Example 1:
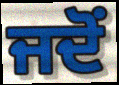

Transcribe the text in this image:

ਜਦੋਂ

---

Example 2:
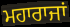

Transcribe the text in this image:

ਮਹਾਰਾਜਾਂ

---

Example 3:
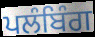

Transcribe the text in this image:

ਪਲੰਬਿੰਗ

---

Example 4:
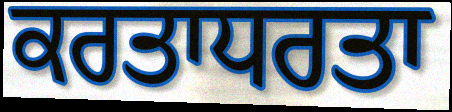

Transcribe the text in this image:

ਕਰਤਾਧਰਤਾ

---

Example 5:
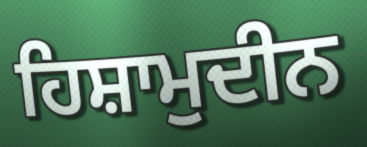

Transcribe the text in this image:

ਹਿਸ਼ਾਮੁਦੀਨ